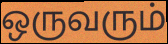
ஒருவரும்